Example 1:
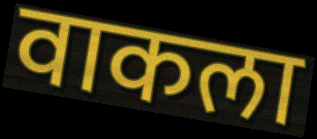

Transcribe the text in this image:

वाकला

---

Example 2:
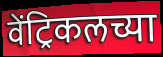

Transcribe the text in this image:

वेंट्रिकलच्या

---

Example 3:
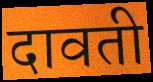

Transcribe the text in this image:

दावती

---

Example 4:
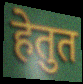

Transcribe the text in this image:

हेतुत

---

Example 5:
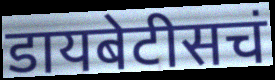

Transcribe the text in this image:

डायबेटीसचं